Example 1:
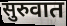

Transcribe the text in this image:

सुरुवात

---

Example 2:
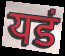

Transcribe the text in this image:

यडं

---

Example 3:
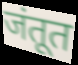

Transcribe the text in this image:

जंतूत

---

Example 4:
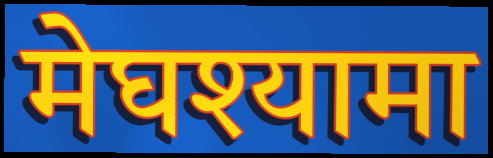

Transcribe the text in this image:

मेघश्यामा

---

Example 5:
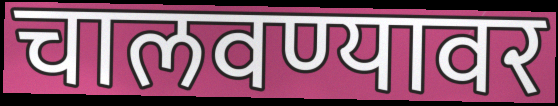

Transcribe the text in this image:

चालवण्यावर